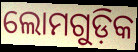
ଲୋମଗୁଡ଼ିକ